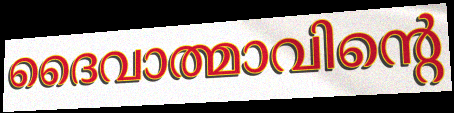
ദൈവാത്മാവിന്റെ